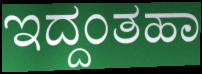
ಇದ್ದಂತಹಾ